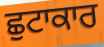
ਛੁਟਾਕਾਰ